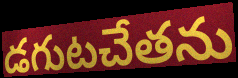
డగుటచేతను